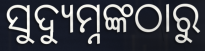
ସୁଦ୍ୟୁମ୍ନଙ୍କଠାରୁ